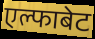
एल्फाबेट